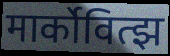
मार्कोवित्झ